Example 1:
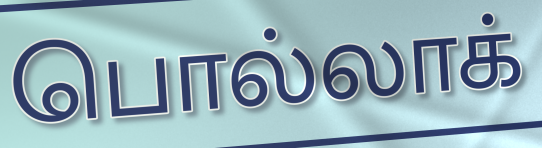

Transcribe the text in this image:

பொல்லாக்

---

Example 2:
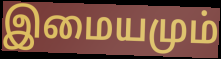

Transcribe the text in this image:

இமையமும்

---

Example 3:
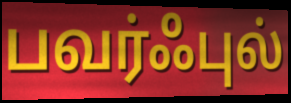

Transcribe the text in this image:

பவர்ஃபுல்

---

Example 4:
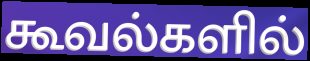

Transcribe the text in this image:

கூவல்களில்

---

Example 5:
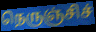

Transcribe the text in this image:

நெருஞ்சிச்